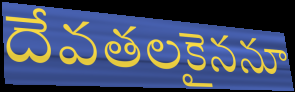
దేవతలకైననూ